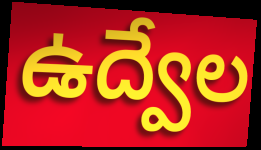
ఉద్వేల